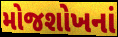
મોજશોખનાં